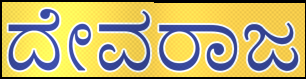
ದೇವರಾಜ